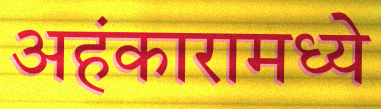
अहंकारामध्ये